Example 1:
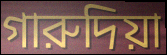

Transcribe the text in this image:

গারুদিয়া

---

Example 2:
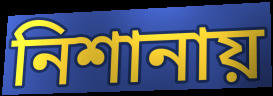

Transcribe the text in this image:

নিশানায়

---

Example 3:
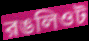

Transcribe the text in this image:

রঙলিওট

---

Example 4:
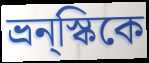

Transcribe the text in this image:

ভ্রন্‌স্কিকে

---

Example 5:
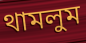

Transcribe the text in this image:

থামলুম